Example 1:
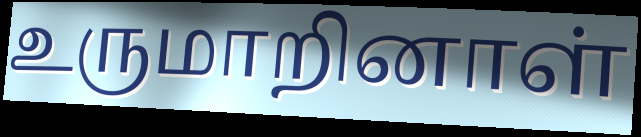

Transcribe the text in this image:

உருமாறினாள்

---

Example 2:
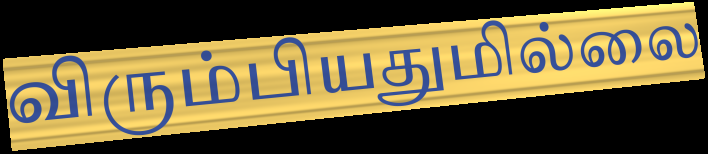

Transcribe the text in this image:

விரும்பியதுமில்லை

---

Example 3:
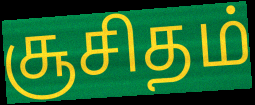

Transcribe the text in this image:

சூசிதம்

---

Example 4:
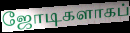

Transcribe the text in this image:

ஜோடிகளாகப்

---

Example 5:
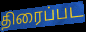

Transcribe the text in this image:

திரைப்பட